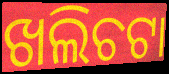
ଖଲିଚଟା